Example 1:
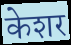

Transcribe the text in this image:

केशर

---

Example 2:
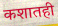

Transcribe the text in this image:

कशातही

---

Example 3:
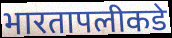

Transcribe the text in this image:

भारतापलीकडे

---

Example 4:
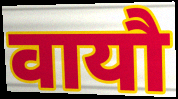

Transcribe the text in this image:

वायौ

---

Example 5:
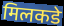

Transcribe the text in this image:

मिलकडे